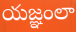
యజ్ఞంలా